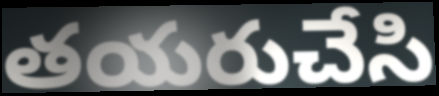
తయరుచేసి